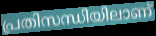
പ്രതിസന്ധിയിലാണ്